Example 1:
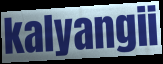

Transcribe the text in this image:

kalyangii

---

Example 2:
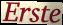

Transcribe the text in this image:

Erste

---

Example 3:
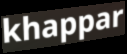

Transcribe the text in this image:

khappar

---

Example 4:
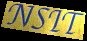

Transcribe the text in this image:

NSIT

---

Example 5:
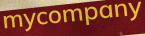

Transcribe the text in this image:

mycompany